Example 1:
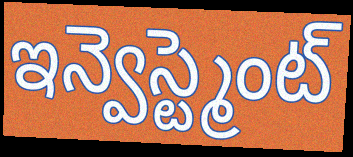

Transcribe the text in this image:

ఇన్వెస్ట్మెంట్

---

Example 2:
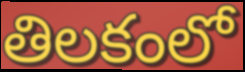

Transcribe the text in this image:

తిలకంలో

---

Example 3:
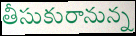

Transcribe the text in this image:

తీసుకురానున్న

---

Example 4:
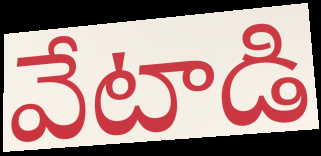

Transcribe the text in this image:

వేటాడి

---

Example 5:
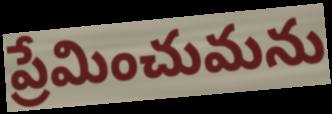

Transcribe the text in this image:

ప్రేమించుమను